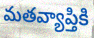
మతవ్యాప్తికి